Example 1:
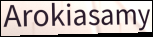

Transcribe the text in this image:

Arokiasamy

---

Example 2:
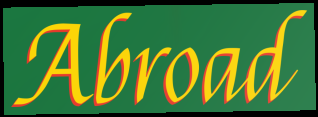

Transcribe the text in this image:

Abroad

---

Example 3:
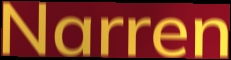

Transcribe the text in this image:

Narren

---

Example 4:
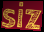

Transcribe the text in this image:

siz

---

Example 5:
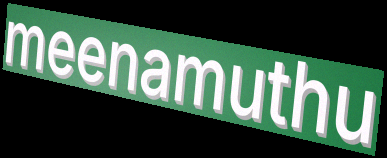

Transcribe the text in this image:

meenamuthu